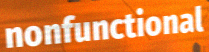
nonfunctional